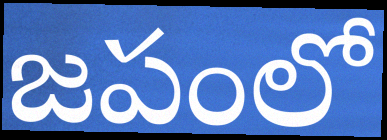
జపంలో